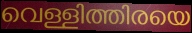
വെള്ളിത്തിരയെ